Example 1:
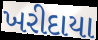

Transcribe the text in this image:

ખરીદાયા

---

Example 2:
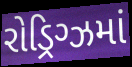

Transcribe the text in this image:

રોડ્રિગ્ઝમાં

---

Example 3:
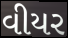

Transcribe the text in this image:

વીયર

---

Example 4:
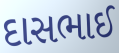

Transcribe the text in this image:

દાસભાઈ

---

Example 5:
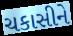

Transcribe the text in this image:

ચકાસીને